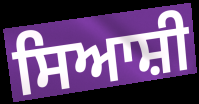
ਸਿਆਸ਼ੀ